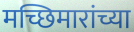
मच्छिमारांच्या